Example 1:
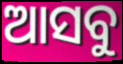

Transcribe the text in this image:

ଆସବୁ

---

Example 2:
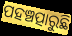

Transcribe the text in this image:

ପହଞ୍ଚତ୍ପାରୁଛି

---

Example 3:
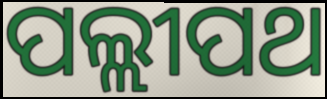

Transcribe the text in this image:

ପଲ୍ଲୀପଥ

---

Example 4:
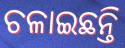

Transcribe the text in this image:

ଚଳାଇଛନ୍ତି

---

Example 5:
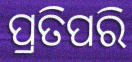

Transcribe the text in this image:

ପ୍ରତିପରି